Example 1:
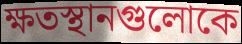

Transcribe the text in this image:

ক্ষতস্থানগুলোকে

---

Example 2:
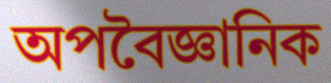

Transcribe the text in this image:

অপবৈজ্ঞানিক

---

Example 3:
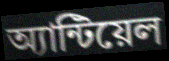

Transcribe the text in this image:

অ্যান্টিয়েল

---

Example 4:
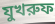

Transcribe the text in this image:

যুখরুফ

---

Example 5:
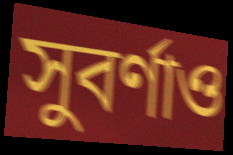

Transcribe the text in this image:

সুবর্ণাও